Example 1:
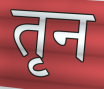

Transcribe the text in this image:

तृन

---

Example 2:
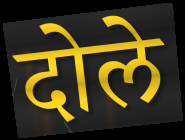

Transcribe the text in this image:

दोले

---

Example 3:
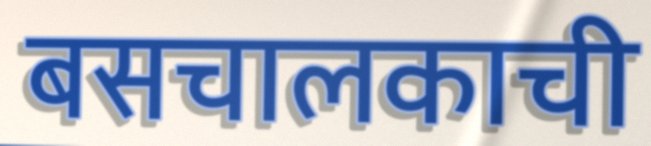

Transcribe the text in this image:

बसचालकाची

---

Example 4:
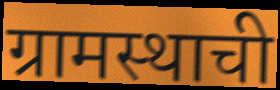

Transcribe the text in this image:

ग्रामस्थाची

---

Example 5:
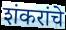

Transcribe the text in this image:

शंकरांचे